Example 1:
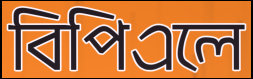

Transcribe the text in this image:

বিপিএলে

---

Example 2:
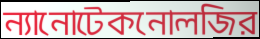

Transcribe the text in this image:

ন্যানোটেকনোলজির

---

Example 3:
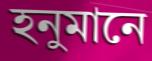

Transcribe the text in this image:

হনুমানে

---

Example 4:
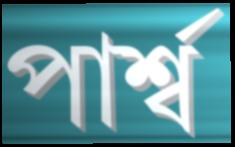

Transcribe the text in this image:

পার্শ্ব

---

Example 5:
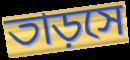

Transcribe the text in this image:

তাড়সে